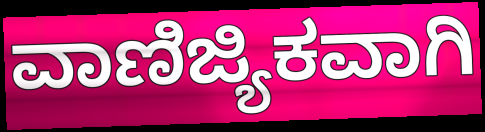
ವಾಣಿಜ್ಯಿಕವಾಗಿ